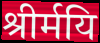
श्रीर्मयि